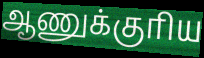
ஆணுக்குரிய